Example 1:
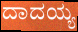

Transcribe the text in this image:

ದಾದಯ್ಯ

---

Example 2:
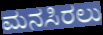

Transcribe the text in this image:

ಮನಸಿರಲು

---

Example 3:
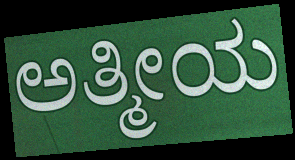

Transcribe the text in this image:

ಅತ್ಮೀಯ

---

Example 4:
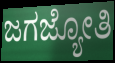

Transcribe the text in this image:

ಜಗಜ್ಯೋತಿ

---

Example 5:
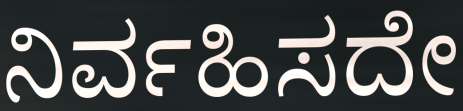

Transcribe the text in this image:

ನಿರ್ವಹಿಸದೇ